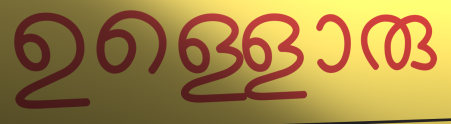
ഉള്ളൊരു